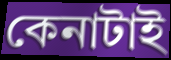
কেনাটাই